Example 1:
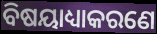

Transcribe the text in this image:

ବିଷୟାଧ୍ୟାକରଣେ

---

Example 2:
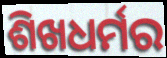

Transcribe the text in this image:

ଶିଖଧର୍ମର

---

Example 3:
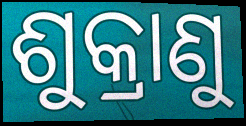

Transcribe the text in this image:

ଶୁକ୍ରାଣୁ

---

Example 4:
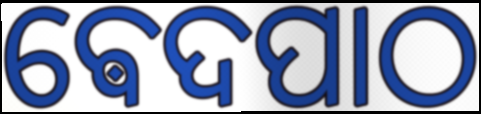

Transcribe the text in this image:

ଵେଦପାଠ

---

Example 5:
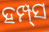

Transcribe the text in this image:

ହମ୍ପ୍‌ସ